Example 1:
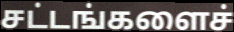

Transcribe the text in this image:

சட்டங்களைச்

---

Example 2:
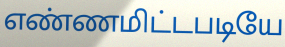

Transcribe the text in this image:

எண்ணமிட்டபடியே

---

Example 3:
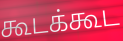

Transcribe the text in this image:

கூடக்கூட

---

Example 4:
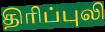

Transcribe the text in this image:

திரிப்புலி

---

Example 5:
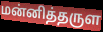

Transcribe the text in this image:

மன்னித்தருள